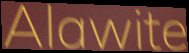
Alawite